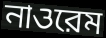
নাওরেম